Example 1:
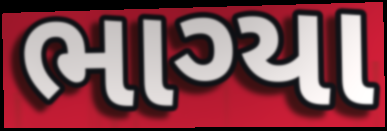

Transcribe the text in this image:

ભાગ્યા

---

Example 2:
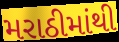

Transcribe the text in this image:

મરાઠીમાંથી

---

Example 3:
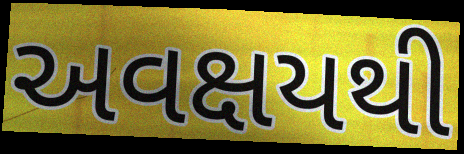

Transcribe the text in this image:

અવક્ષયથી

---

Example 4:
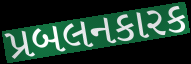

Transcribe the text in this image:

પ્રબલનકારક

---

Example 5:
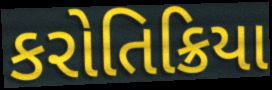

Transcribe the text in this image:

કરોતિક્રિયા